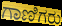
ಗಾಣಿಗರು